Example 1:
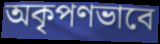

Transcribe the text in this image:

অকৃপণভাবে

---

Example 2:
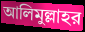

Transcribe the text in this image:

আলিমুল্লাহর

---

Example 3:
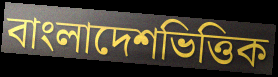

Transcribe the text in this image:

বাংলাদেশভিত্তিক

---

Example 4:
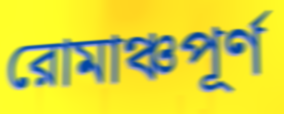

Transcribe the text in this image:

রোমাঞ্চপূর্ণ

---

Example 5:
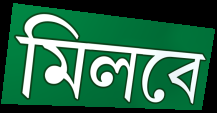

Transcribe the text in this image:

মিলবে